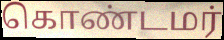
கொண்டமர்